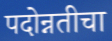
पदोन्नतीचा